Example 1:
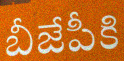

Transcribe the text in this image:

బీజేపీకి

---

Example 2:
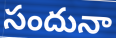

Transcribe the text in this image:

సందునా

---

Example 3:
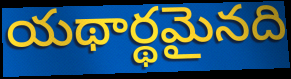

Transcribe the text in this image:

యథార్థమైనది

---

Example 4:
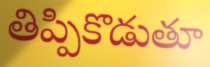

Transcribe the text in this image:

తిప్పికొడుతూ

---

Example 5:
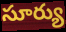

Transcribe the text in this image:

సూర్యు